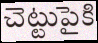
చెట్టుపైకి